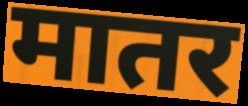
मातर